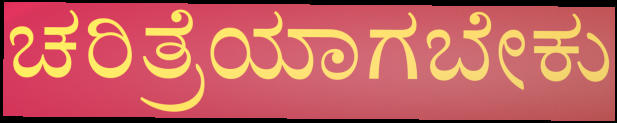
ಚರಿತ್ರೆಯಾಗಬೇಕು